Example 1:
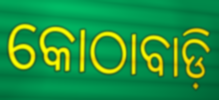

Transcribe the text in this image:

କୋଠାବାଡ଼ି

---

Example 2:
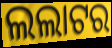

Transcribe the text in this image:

ଲଲାଟର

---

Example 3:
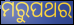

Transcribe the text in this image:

ମରୁପଥର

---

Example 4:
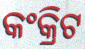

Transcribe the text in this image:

କଂକ୍ରିଟ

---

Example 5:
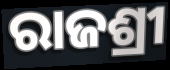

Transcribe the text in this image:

ରାଜଶ୍ରୀ